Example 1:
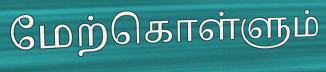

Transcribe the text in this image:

மேற்கொள்ளும்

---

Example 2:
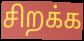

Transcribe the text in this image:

சிறக்க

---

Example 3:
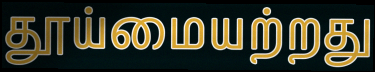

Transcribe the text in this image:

தூய்மையற்றது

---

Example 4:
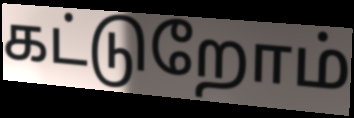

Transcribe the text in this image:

கட்டுறோம்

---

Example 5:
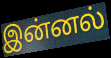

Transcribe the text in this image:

இன்னல்